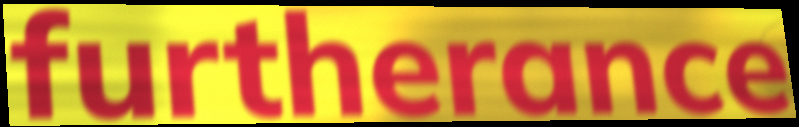
furtherance